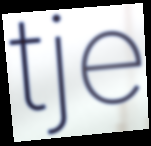
tje